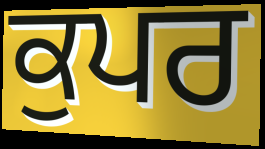
ਕੁਪਰ